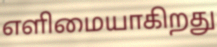
எளிமையாகிறது